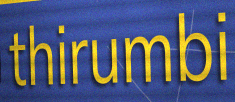
thirumbi